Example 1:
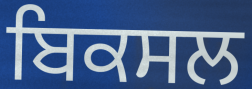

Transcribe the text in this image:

ਬਿਕਸਲ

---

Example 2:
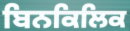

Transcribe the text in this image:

ਬਿਨਕਿਲਿਕ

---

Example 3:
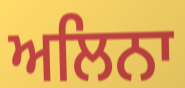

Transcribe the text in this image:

ਅਲਿਨਾ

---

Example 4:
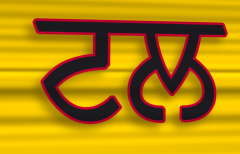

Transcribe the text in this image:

ਟਲ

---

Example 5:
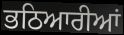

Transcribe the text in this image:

ਭਠਿਆਰੀਆਂ